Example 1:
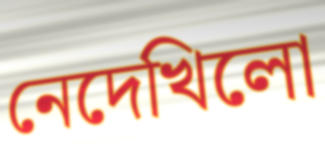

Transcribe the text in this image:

নেদেখিলো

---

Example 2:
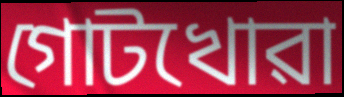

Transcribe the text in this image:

গোটখোৱা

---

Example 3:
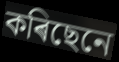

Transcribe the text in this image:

কৰিছেনে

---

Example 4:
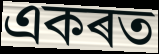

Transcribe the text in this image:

একৰত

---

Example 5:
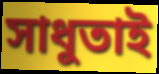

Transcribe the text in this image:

সাধুতাই